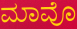
ಮಾವೊ